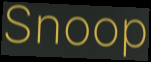
Snoop